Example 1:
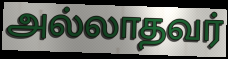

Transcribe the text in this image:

அல்லாதவர்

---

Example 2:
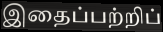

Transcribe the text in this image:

இதைப்பற்றிப்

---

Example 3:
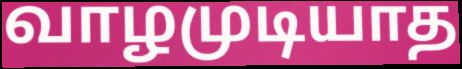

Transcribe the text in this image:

வாழமுடியாத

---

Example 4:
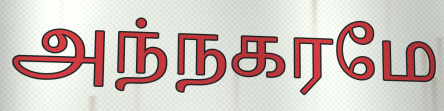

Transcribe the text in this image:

அந்நகரமே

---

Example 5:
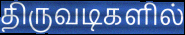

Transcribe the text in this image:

திருவடிகளில்